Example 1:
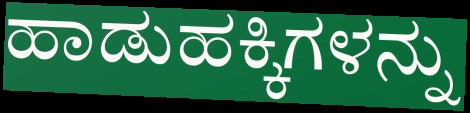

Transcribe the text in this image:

ಹಾಡುಹಕ್ಕಿಗಳನ್ನು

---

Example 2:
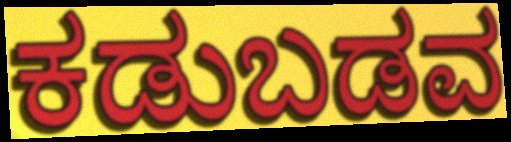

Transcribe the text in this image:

ಕಡುಬಡವ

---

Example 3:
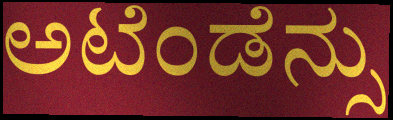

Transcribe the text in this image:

ಅಟೆಂಡೆನ್ಸು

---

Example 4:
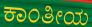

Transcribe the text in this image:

ಕಾಂತೀಯ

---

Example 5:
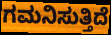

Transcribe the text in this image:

ಗಮನಿಸುತ್ತಿದೆ